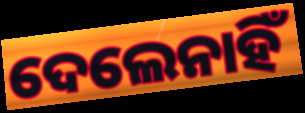
ଦେଲେନାହିଁ